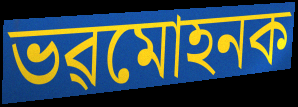
ভৱমোহনক